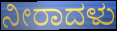
ನೀರಾದಳು